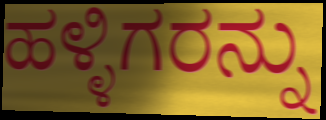
ಹಳ್ಳಿಗರನ್ನು